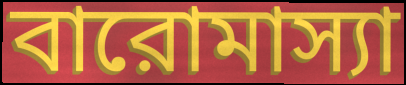
বারোমাস্যা